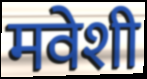
मवेशी